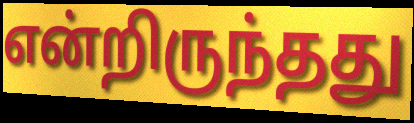
என்றிருந்தது